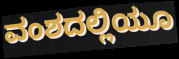
ವಂಶದಲ್ಲಿಯೂ